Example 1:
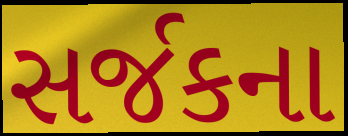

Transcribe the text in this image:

સર્જકના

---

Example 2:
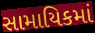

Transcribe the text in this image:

સામાયિકમાં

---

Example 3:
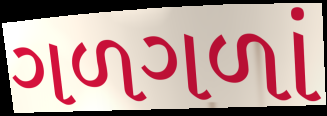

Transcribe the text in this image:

ગળગળાં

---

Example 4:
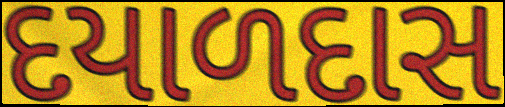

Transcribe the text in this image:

દયાળદાસ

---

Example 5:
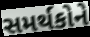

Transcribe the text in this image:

સમર્થકોને